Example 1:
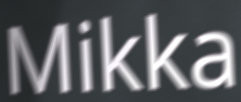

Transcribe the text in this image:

Mikka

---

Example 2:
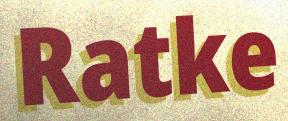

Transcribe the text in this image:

Ratke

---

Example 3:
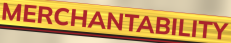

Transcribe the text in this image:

MERCHANTABILITY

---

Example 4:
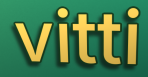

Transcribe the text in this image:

vitti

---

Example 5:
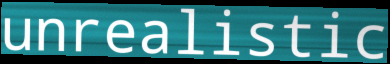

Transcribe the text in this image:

unrealistic